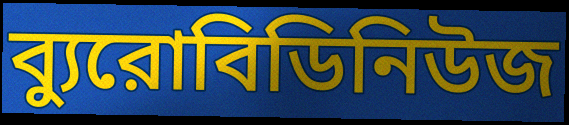
ব্যুরোবিডিনিউজ